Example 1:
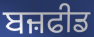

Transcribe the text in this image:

ਬਜ਼ਫੀਡ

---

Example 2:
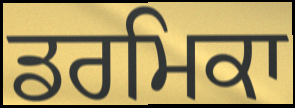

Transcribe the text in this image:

ਡਰਮਿਕਾ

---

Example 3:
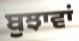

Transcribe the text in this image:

ਬੁਝਾਵਾਂ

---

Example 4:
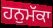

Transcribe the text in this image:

ਹਨੁਮੱਕਾ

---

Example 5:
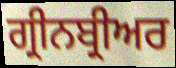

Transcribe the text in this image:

ਗ੍ਰੀਨਬ੍ਰੀਅਰ